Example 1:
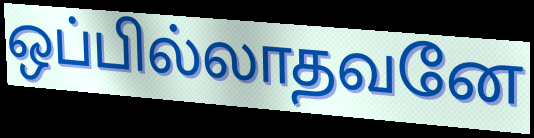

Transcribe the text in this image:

ஒப்பில்லாதவனே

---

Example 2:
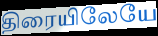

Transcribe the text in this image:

திரையிலேயே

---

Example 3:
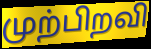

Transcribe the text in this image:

முற்பிறவி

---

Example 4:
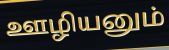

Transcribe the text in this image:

ஊழியனும்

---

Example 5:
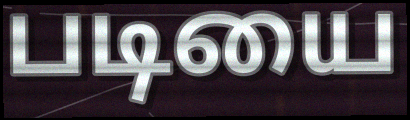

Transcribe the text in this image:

படியை